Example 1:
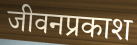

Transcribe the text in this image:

जीवनप्रकाश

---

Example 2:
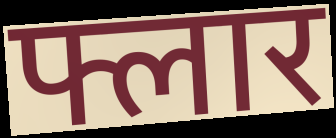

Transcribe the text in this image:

फ्लार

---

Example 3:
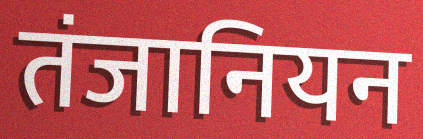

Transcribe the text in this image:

तंजानियन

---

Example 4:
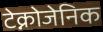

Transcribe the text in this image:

टेक्नोजेनिक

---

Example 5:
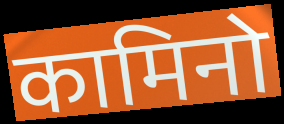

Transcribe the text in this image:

कामिनो